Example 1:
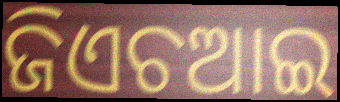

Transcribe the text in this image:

ଜିଏଚଆଇ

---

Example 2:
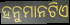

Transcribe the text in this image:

ହନୁମାନଟିଏ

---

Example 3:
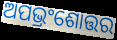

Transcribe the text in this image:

ଅପଭ୍ରଂଶୋତ୍ତର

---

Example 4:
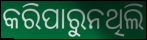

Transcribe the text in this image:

କରିପାରୁନଥିଲି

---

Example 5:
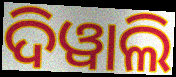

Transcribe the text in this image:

ଦିୱାଲି